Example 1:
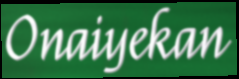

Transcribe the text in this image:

Onaiyekan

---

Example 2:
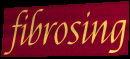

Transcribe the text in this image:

fibrosing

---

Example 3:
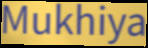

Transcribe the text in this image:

Mukhiya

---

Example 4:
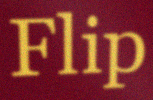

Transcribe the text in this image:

Flip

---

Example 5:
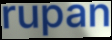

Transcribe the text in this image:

rupan